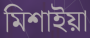
মিশাইয়া